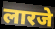
लारजे